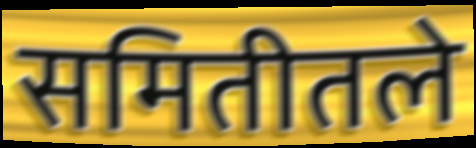
समितीतले